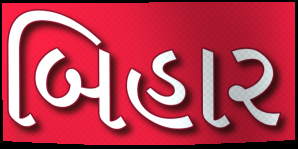
બિહાર